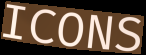
ICONS